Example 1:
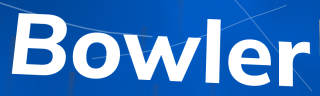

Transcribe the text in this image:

Bowler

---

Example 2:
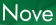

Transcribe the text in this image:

Nove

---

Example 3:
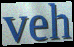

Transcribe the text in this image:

veh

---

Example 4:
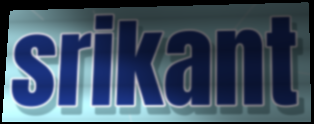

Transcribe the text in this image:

srikant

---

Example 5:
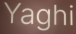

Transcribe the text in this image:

Yaghi